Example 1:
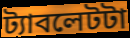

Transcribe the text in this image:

ট্যাবলেটটা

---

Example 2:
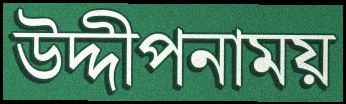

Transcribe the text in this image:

উদ্দীপনাময়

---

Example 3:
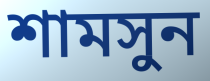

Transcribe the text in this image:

শামসুন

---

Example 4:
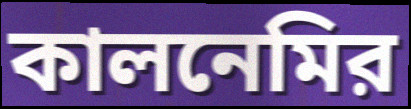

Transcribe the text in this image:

কালনেমির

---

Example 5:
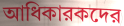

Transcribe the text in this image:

আধিকারকদের